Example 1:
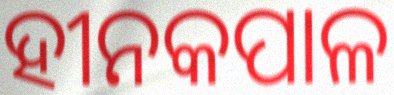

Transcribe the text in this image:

ହୀନକପାଳ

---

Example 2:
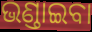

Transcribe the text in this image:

ଭଣ୍ଡାଇବା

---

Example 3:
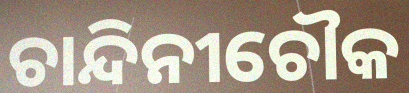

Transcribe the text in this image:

ଚାନ୍ଦିନୀଚୌକ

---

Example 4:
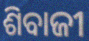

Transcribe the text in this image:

ଶିବାଜୀ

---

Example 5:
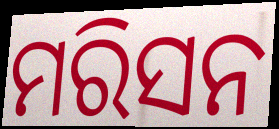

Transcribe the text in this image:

ମରିସନ